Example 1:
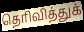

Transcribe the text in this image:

தெரிவித்துக்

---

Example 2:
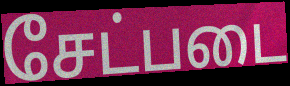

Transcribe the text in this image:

சேட்படை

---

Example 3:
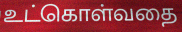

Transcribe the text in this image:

உட்கொள்வதை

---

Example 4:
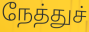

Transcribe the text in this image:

நேத்துச்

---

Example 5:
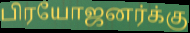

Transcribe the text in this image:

பிரயோஜனர்க்கு